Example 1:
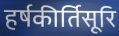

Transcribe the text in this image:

हर्षकीर्तिसूरि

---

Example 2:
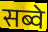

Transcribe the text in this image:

सब्वे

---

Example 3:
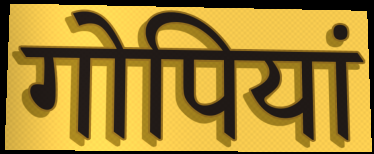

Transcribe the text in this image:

गोपियां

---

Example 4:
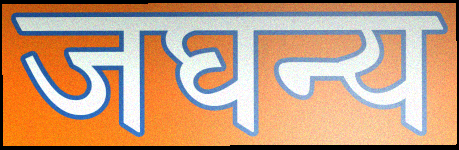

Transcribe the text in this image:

जघन्य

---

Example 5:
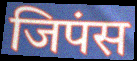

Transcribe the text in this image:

जिपंस